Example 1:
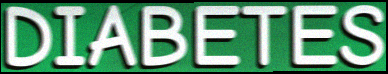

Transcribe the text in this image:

DIABETES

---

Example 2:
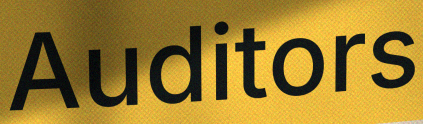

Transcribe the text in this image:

Auditors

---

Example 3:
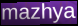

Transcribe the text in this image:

mazhya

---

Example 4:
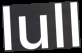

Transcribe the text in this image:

lull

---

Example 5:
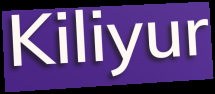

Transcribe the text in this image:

Kiliyur